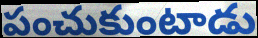
పంచుకుంటాడు